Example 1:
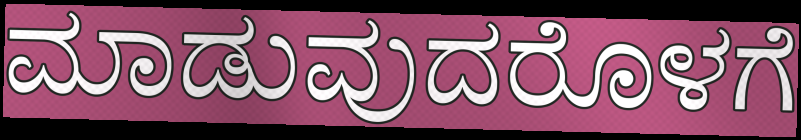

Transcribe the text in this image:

ಮಾಡುವುದರೊಳಗೆ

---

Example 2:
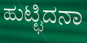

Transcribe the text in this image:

ಹುಟ್ಟಿದನಾ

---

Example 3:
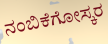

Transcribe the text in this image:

ನಂಬಿಕೆಗೋಸ್ಕರ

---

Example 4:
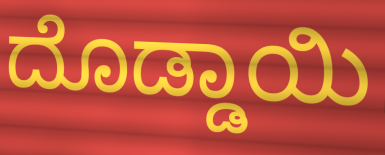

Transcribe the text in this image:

ದೊಡ್ಡಾಯಿ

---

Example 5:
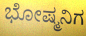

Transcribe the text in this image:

ಭೋಷ್ಮನಿಗ